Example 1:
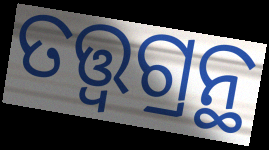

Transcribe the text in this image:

ତତ୍ତ୍ୱଗ୍ରନ୍ଥ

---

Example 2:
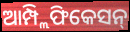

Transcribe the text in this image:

ଆମ୍ପ୍ଲିଫିକେସନ୍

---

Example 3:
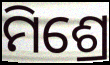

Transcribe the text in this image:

ମିଶ୍ରେ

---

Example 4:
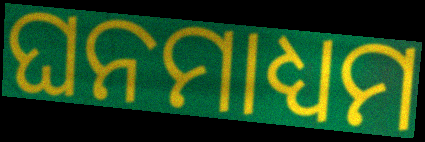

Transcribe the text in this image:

ଘନମାଧ୍ୟମ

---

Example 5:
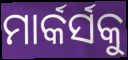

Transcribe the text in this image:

ମାର୍କର୍ସକୁ